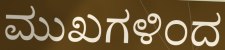
ಮುಖಗಳಿಂದ